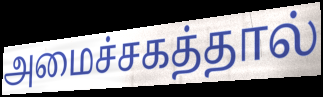
அமைச்சகத்தால்